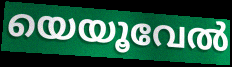
യെയൂവേൽ